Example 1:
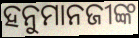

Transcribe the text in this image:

ହନୁମାନଜୀଙ୍କ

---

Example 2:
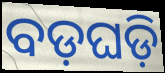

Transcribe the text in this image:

ବଡ଼ଘଡ଼ି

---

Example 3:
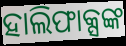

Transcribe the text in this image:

ହାଲିଫାକ୍ସଙ୍କ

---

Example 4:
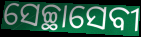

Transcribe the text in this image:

ସେଚ୍ଛାସେବୀ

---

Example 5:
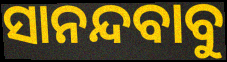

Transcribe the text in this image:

ସାନନ୍ଦବାବୁ